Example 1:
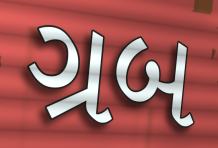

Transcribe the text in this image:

ગ્રબ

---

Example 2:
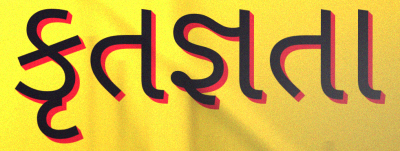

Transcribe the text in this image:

કૃતજ્ઞતા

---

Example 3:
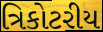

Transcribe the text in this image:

ત્રિકોટરીય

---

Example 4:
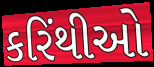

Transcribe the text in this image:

કરિંથીઓ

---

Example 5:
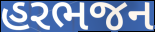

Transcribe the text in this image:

હરભજન